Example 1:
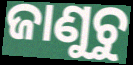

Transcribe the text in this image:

ଜାଣୁଚୁ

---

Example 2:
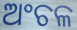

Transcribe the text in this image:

ଅଂଚଳ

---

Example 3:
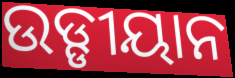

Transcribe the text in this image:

ଉଡ୍ଡୀୟାନ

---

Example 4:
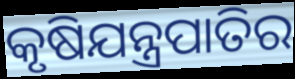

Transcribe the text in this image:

କୃଷିଯନ୍ତ୍ରପାତିର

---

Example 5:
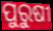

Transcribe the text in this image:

ପୁରୁଷୀ